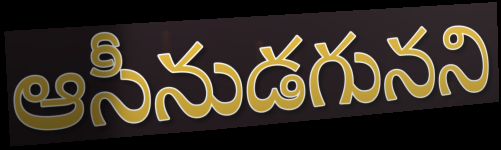
ఆసీనుడగునని